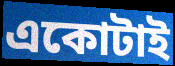
একোটাই